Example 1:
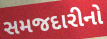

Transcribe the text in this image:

સમજદારીનો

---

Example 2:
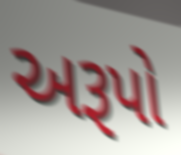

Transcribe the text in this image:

અરૂપો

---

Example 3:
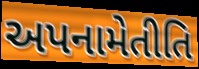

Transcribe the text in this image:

અપનામેતીતિ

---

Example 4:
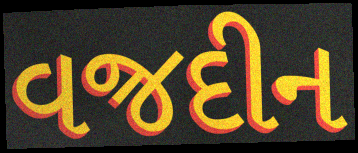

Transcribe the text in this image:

વજ્રદીન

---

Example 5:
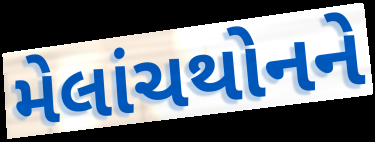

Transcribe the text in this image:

મેલાંચથોનને